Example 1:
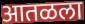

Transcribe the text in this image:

आतळला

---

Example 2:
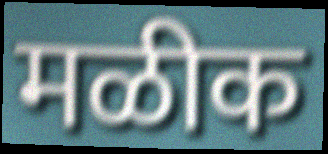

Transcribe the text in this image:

मळीक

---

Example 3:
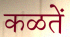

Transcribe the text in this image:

कळतें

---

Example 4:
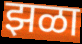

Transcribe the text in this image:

झळा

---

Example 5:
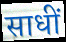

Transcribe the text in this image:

साधीं